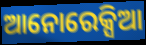
ଆନୋରେକ୍ସିଆ